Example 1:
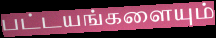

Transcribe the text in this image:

பட்டயங்களையும்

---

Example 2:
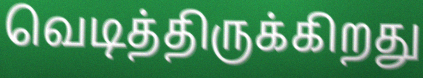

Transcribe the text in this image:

வெடித்திருக்கிறது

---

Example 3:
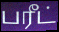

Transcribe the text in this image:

பரீட்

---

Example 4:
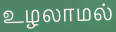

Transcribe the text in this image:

உழலாமல்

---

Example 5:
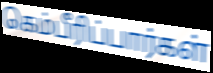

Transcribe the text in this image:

கெம்பீரிப்பார்கள்